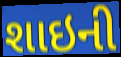
શાઇની